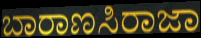
ಬಾರಾಣಸಿರಾಜಾ